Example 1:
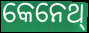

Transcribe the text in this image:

କେନେଥ୍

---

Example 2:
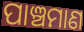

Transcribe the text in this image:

ପାଞ୍ଚମାଣ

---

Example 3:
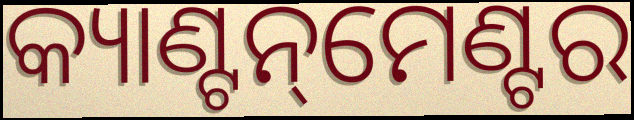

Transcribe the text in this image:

କ୍ୟାଣ୍ଟନ୍‌ମେଣ୍ଟର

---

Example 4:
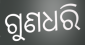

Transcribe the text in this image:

ଗୁଣଧରି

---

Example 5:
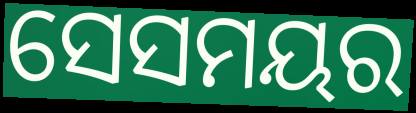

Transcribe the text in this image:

ସେସମୟର